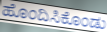
ಹೊಂದಿಸಿಕೊಂಡು